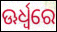
ଊର୍ଧ୍ୱରେ